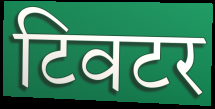
टिवटर